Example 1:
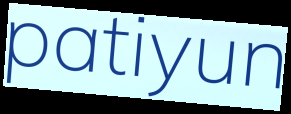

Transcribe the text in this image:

patiyun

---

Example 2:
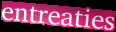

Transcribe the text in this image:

entreaties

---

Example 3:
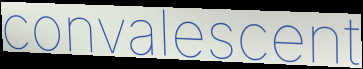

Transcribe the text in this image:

convalescent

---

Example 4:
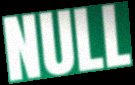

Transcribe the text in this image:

NULL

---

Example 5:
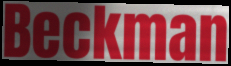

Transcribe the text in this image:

Beckman